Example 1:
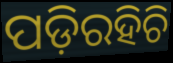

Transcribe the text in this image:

ପଡ଼ିରହିଚି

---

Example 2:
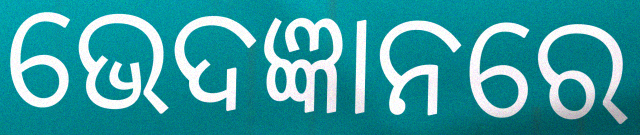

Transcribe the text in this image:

ଭେଦଜ୍ଞାନରେ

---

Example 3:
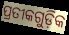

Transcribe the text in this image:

ପ୍ରତୀକଗୁଡ଼ିକ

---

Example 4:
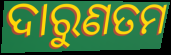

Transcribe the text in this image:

ଦାରୁଣତମ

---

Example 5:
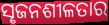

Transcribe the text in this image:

ସୃଜନଶୀଳତାର